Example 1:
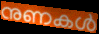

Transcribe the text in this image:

നുണകൾ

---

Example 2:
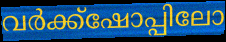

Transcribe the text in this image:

വർക്ക്ഷോപ്പിലോ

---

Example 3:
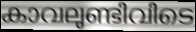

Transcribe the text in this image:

കാവലുണ്ടിവിടെ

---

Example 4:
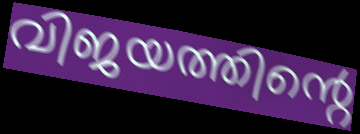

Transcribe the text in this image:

വിജയത്തിന്റെ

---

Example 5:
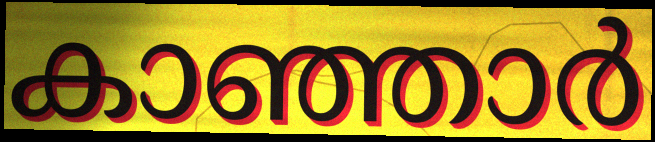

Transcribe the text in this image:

കാഞ്ഞാർ